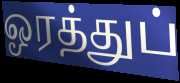
ஓரத்துப்